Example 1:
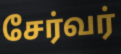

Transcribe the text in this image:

சேர்வர்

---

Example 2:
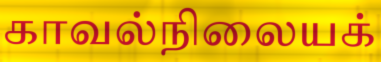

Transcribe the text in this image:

காவல்நிலையக்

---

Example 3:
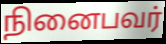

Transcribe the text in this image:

நினைபவர்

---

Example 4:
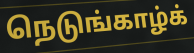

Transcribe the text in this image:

நெடுங்காழ்க்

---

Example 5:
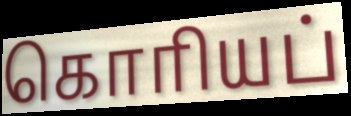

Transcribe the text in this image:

கொரியப்